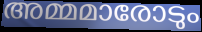
അമ്മമാരോടും